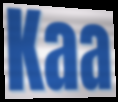
Kaa